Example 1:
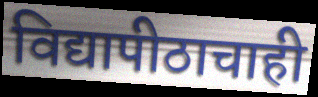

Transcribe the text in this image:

विद्यापीठाचाही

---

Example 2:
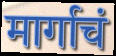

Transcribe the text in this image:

मार्गाचं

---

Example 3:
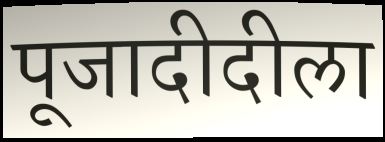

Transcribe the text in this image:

पूजादीदीला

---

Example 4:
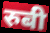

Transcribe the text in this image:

रुबी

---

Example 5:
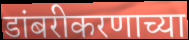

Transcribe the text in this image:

डांबरीकरणाच्या